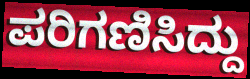
ಪರಿಗಣಿಸಿದ್ದು